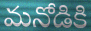
మనోడికి